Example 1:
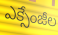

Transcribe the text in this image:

ఎక్సేంజీల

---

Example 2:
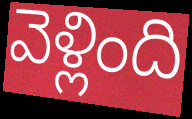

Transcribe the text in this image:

వెళ్లింది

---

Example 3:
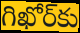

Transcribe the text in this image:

గిఖోర్‌కు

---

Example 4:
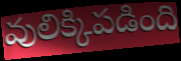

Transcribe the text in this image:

వులిక్కిపడింది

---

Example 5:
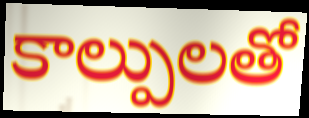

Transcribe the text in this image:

కాల్పులతో